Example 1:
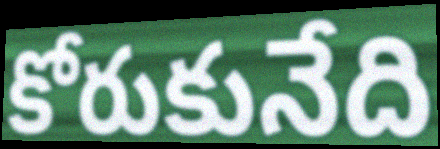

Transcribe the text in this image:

కోరుకునేది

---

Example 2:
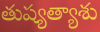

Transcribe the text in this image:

తుష్యత్యాశు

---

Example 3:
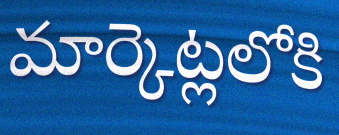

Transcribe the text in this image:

మార్కెట్లలోకి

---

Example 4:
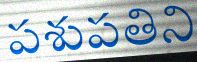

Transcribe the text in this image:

పశుపతిని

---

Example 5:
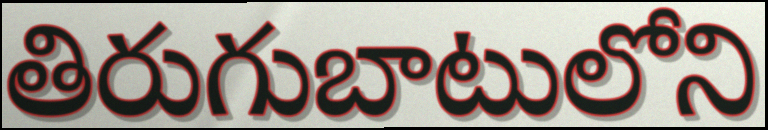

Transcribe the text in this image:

తిరుగుబాటులోని